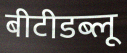
बीटीडब्लू